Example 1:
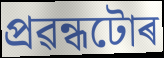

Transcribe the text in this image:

প্ৰৱন্ধটোৰ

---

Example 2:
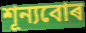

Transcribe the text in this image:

শূন্যবোৰ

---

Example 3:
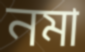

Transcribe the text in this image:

নমা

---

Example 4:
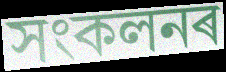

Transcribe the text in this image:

সংকলনৰ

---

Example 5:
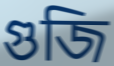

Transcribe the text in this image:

গুজি